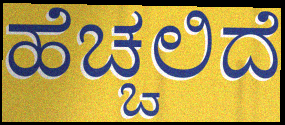
ಹೆಚ್ಚಲಿದೆ